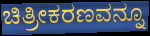
ಚಿತ್ರೀಕರಣವನ್ನೂ